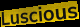
Luscious